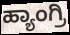
ಹ್ಯಾಂಗ್ರಿ